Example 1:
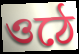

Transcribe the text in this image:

ওঠে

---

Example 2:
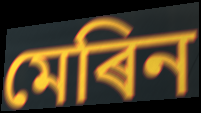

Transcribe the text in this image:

মেৰিন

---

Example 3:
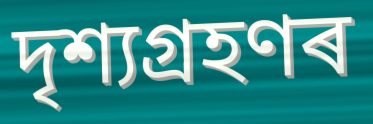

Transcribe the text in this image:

দৃশ্যগ্ৰহণৰ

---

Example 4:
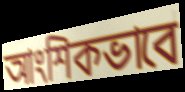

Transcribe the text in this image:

আংশিকভাবে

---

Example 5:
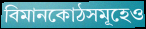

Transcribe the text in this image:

বিমানকোঠসমূহেও